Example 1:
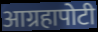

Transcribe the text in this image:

आग्रहापोटी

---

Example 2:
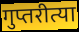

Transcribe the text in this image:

गुप्तरीत्या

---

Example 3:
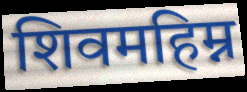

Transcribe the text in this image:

शिवमहिम्न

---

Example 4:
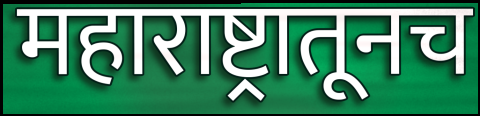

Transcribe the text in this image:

महाराष्ट्रातूनच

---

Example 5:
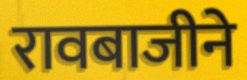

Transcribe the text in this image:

रावबाजीने